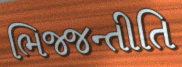
ભિજ્જન્તીતિ